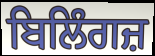
ਬਿਲਿੰਗਜ਼